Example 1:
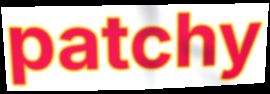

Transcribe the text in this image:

patchy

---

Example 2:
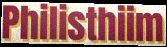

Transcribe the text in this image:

Philisthiim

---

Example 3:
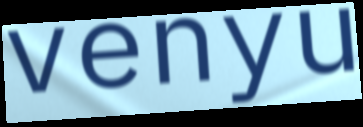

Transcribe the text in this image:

venyu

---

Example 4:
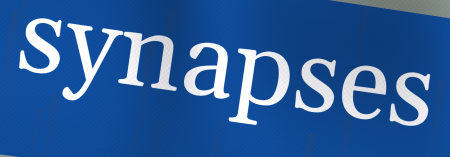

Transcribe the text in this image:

synapses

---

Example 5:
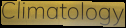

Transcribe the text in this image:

Climatology